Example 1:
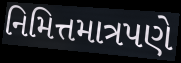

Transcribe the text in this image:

નિમિત્તમાત્રપણે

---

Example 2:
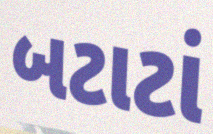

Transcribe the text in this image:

બટાટાં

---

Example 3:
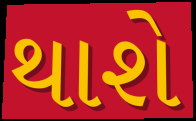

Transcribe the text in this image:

થાશે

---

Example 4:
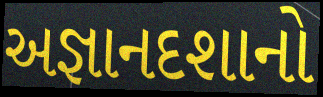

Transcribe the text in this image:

અજ્ઞાનદશાનો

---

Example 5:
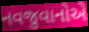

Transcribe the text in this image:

નવજુવાનોએ